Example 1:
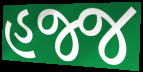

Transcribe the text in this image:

હજ્જ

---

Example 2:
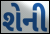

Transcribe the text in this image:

શેની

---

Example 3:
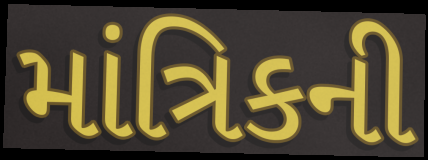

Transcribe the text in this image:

માંત્રિકની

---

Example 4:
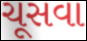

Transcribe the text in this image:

ચૂસવા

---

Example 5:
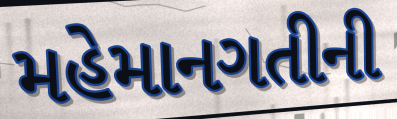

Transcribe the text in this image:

મહેમાનગતીની